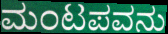
ಮಂಟಪವನು